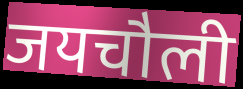
जयचौली